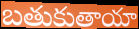
బతుకుతాయా